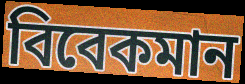
বিবেকমান